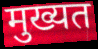
मुख्यत